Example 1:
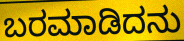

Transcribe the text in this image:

ಬರಮಾಡಿದನು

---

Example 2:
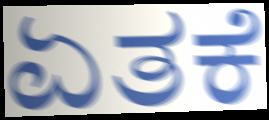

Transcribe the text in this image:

ಏತಕೆ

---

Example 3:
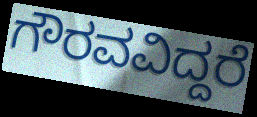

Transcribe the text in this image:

ಗೌರವವಿದ್ದರೆ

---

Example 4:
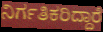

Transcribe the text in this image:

ನಿರ್ಗತಿಕರಿದ್ದಾರೆ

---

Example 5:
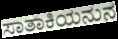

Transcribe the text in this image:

ಸಾತಾಕಿಯನುನ